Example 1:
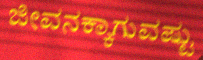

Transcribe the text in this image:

ಜೀವನಕ್ಕಾಗುವಷ್ಟು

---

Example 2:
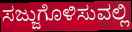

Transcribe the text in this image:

ಸಜ್ಜುಗೊಳಿಸುವಲ್ಲಿ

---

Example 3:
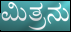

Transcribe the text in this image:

ಮಿತ್ರನು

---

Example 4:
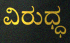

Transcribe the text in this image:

ವಿರುಧ್ಧ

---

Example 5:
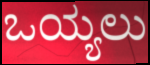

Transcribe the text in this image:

ಒಯ್ಯಲು